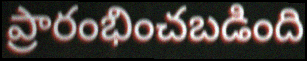
ప్రారంభించబడింది